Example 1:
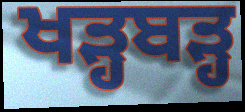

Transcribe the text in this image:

ਖੜ੍ਹਬੜ੍ਹ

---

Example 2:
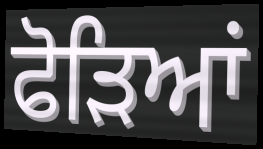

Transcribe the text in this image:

ਫੋੜਿਆਂ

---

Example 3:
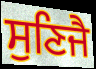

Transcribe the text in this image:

ਸੁਣਿਜੈ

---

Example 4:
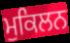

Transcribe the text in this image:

ਮੁਕਿਲਨ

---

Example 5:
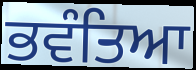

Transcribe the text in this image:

ਭਵੰਤਿਆ